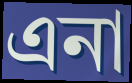
এনা